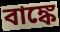
বাঙ্কে